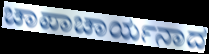
ಚಾಪಾಚಾರ್ಯನಾದ